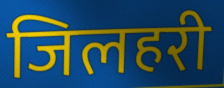
जिलहरी